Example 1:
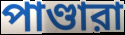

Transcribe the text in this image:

পাণ্ডারা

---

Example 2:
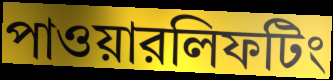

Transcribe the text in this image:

পাওয়ারলিফটিং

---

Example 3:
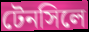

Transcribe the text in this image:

টেনসিলে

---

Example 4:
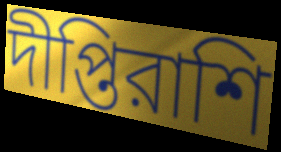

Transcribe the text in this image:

দীপ্তিরাশি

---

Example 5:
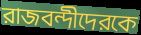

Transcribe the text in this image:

রাজবন্দীদেরকে